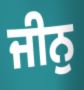
ਜੀਨੁ